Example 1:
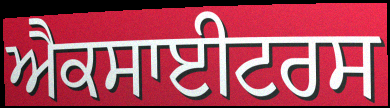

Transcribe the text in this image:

ਐਕਸਾਈਟਰਸ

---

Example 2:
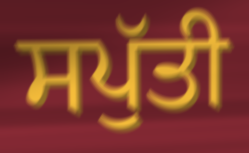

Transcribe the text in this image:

ਸਪੁੱਤੀ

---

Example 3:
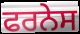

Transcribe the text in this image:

ਫਰਨੇਸ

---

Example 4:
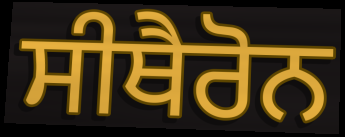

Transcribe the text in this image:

ਸੀਥੈਰੋਨ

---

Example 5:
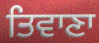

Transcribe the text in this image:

ਤਿਵਾਣਾ